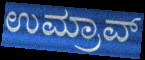
ಉಮ್ರಾವ್